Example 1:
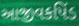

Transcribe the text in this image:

આજીવકપિંડ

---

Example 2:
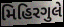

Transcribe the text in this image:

મિહિરગુલે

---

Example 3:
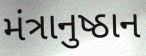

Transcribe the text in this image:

મંત્રાનુષ્ઠાન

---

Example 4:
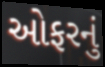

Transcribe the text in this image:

ઓફરનું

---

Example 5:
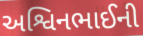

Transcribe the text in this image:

અશ્વિનભાઈની